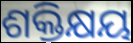
ଶକ୍ତିକ୍ଷୟ